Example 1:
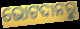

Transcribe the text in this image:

ଭୋଟଦାନରୁ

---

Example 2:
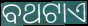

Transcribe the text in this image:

ବଥଟାଏ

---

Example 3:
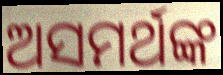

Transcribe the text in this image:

ଅସମର୍ଥଙ୍କ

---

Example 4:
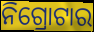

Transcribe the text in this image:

ନିଗ୍ରୋଟାର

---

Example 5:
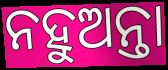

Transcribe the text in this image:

ନହୁଅନ୍ତା